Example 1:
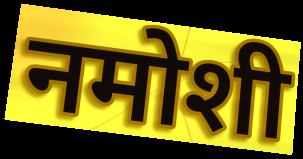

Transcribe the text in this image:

नमोशी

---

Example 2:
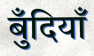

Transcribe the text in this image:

बुँदियाँ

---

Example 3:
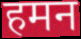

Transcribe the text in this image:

हमन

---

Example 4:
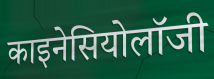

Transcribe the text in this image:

काइनेसियोलॉजी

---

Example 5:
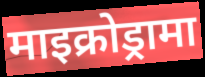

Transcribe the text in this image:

माइक्रोड्रामा